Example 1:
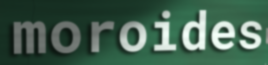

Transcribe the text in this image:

moroides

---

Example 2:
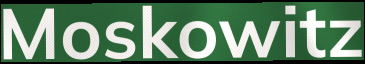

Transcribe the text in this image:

Moskowitz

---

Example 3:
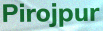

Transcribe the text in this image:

Pirojpur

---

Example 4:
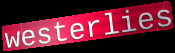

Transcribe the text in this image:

westerlies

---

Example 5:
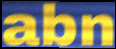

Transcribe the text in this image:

abn